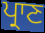
ਪ੍ਰਾਣ